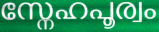
സ്നേഹപൂര്വം